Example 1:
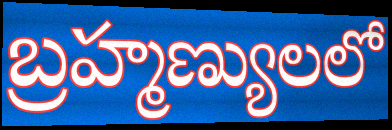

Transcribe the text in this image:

బ్రహ్మణ్యులలో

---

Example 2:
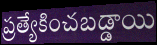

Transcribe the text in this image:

ప్రత్యేకించబడ్డాయి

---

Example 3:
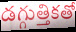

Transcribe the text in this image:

డగ్గుత్తికతో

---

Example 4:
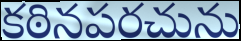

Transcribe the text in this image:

కఠినపరచును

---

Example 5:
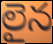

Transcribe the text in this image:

లైన